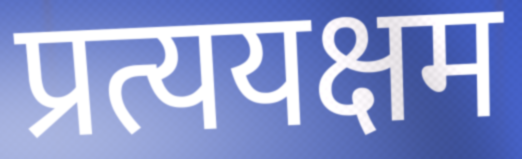
प्रत्ययक्षम